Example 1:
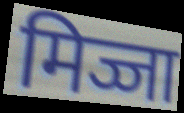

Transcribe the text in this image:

मिज्जा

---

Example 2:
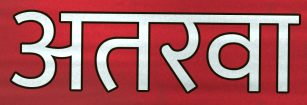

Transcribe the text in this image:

अतरवा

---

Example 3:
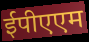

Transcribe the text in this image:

ईपीएएम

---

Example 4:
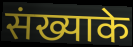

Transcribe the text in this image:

संख्याके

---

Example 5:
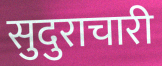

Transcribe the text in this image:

सुदुराचारी